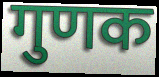
गुणक